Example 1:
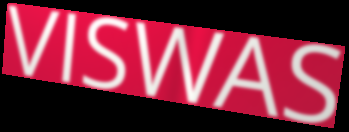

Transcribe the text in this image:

VISWAS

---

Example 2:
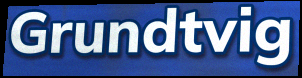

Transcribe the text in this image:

Grundtvig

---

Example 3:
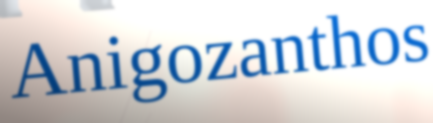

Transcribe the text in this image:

Anigozanthos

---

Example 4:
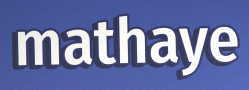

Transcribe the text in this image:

mathaye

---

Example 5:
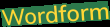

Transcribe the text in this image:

Wordform